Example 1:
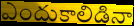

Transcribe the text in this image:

ఎందుకాలిడినా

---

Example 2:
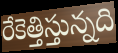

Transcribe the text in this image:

రేకెత్తిస్తున్నది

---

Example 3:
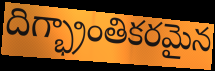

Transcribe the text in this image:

దిగ్భ్రాంతికరమైన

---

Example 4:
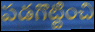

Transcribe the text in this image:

పడగొట్టించి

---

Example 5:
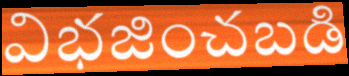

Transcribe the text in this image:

విభజించబడి